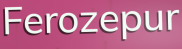
Ferozepur